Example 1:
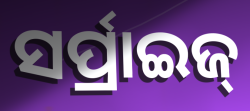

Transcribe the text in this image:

ସର୍ପ୍ରାଇଜ୍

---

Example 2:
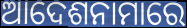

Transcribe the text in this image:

ଆଦେଶନାମାରେ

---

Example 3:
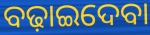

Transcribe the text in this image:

ବଢ଼ାଇଦେବା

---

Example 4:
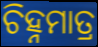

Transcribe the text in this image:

ଚିହ୍ନମାତ୍ର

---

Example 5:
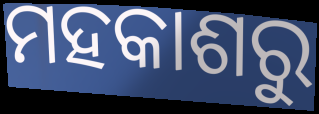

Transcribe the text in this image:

ମହକାଶରୁ